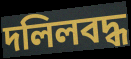
দলিলবদ্ধ